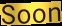
Soon